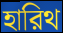
হারিথ